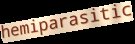
hemiparasitic